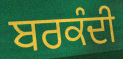
ਬਰਕੰਦੀ